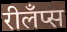
रीलँप्स